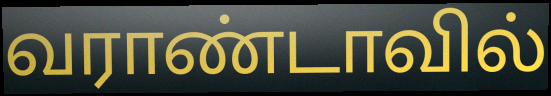
வராண்டாவில்